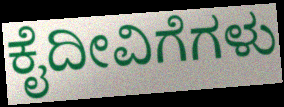
ಕೈದೀವಿಗೆಗಳು